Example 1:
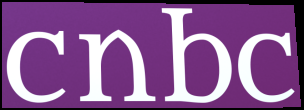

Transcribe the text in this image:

cnbc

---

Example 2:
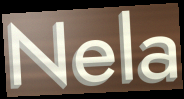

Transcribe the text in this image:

Nela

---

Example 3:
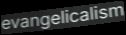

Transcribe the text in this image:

evangelicalism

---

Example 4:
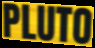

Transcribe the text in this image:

PLUTO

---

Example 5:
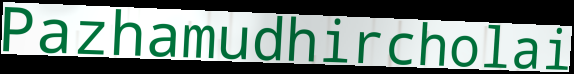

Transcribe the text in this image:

Pazhamudhircholai